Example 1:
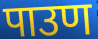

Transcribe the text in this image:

पाउण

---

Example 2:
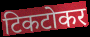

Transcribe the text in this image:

टिकटोकर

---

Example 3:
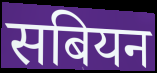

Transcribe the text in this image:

सबियन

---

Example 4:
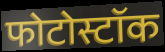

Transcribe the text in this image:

फोटोस्टॉक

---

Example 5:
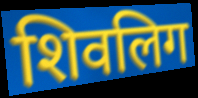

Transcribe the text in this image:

शिवलिग